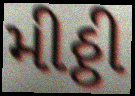
મીઠ્ઠી